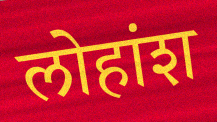
लोहांश